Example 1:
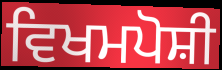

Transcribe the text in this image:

ਵਿਖਮਪੋਸ਼ੀ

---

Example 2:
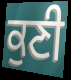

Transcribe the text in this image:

ਕੁਣੀ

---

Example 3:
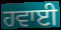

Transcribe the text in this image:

ਹਵਾਈ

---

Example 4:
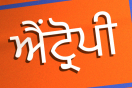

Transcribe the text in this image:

ਐਂਟ੍ਰੋਪੀ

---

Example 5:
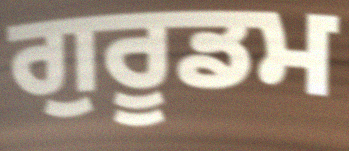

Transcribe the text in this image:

ਗੁਰੂਡਮ